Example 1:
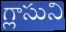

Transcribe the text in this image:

గ్లాసుని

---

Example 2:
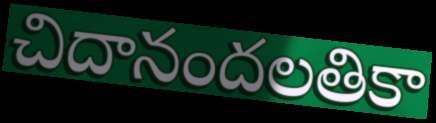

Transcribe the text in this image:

చిదానందలతికా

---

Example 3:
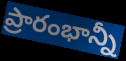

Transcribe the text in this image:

ప్రారంభాన్నీ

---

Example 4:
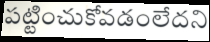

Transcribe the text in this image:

పట్టించుకోవడంలేదని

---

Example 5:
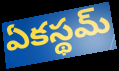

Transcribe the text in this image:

ఏకస్థమ్